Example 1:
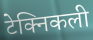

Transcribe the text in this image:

टेक्निकली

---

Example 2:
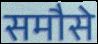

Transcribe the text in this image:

समौसे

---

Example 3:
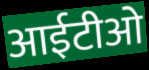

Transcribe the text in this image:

आईटीओ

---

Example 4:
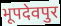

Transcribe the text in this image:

भूपदेवपुर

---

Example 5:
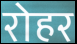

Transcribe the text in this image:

रोहर